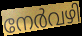
നേർവഴി